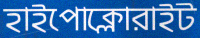
হাইপোক্লোরাইট